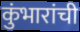
कुंभारांची